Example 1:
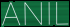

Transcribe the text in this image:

ANIL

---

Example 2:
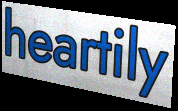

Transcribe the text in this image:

heartily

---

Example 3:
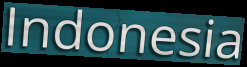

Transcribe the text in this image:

Indonesia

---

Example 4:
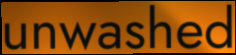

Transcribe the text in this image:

unwashed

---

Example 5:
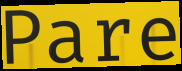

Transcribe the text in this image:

Pare